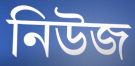
নিউজ